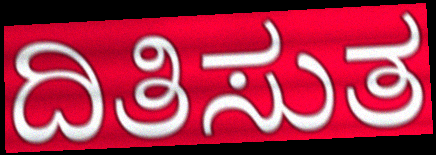
ದಿತಿಸುತ